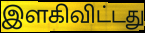
இளகிவிட்டது